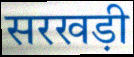
सरखड़ी